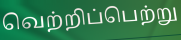
வெற்றிப்பெற்று